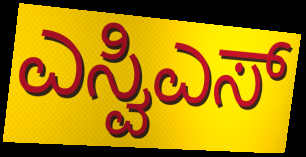
ಎಸ್ವಿಎಸ್